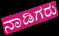
ನಾಡಿಗರು